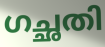
ഗച്ഛതി